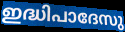
ഇദ്ധിപാദേസു